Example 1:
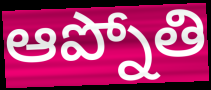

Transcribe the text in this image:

ఆప్నోతి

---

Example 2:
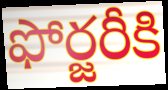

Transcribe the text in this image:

ఫోర్జరీకి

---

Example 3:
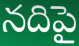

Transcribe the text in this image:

నదిపై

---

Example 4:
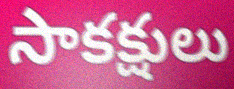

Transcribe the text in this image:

సాకక్షులు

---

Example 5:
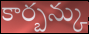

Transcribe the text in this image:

కార్బన్కు